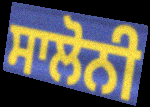
ਸਾਲੋਨੀ